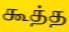
கூத்த